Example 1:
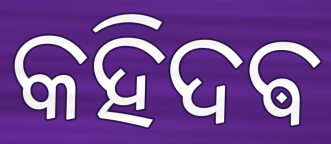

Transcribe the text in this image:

କହିଦଵ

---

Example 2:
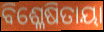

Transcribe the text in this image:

ବିଶ୍ଳେଷିତାୟା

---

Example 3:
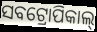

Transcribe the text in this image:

ସବଟ୍ରୋପିକାଲ୍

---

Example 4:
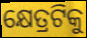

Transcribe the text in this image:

କ୍ଷେତ୍ରଟିକୁ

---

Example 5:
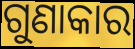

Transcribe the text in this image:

ଗୁଣାକାର